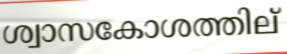
ശ്വാസകോശത്തില്